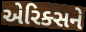
એરિક્સને